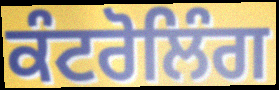
ਕੰਟਰੋਲਿੰਗ